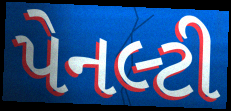
પેનલ્ટી